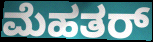
ಮೆಹತರ್